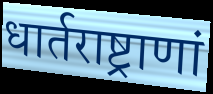
धार्तराष्ट्राणां